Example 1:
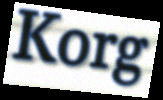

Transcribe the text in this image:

Korg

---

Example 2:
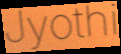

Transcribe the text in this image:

Jyothi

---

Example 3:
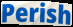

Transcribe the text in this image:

Perish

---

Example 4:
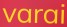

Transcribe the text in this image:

varai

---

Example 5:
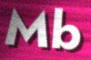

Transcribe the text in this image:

Mb